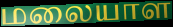
மலையாள